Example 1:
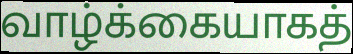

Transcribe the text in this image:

வாழ்க்கையாகத்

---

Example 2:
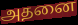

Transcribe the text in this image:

அதனை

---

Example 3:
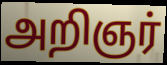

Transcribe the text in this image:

அறிஞர்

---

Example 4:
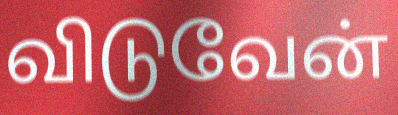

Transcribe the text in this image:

விடுவேன்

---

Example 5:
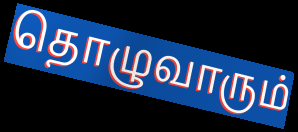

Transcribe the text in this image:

தொழுவாரும்